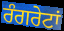
ਰੰਗਰੇਟਾਂ